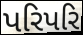
પરિપરિ